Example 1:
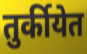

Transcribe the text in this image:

तुर्कीयेत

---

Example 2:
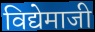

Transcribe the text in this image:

विद्येमाजी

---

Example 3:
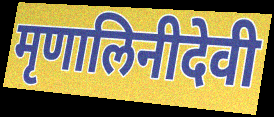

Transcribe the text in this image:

मृणालिनीदेवी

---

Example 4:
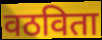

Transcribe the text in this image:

वठविता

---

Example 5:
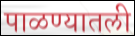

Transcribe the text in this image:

पाळण्यातली